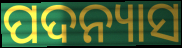
ପଦନ୍ୟାସ